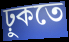
ঢ়ুকতে